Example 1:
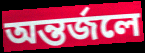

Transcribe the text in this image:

অন্তর্জলে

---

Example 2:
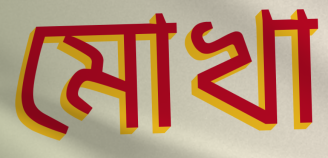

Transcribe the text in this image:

মোখা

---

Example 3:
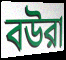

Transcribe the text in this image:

বউরা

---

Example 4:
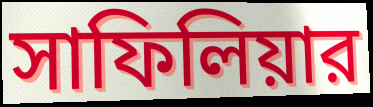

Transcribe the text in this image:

সাফিলিয়ার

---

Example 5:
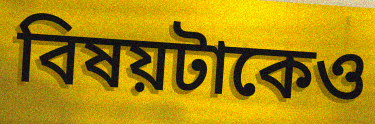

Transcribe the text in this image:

বিষয়টাকেও